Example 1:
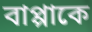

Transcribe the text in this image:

বাপ্পাকে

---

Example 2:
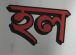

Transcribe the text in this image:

হল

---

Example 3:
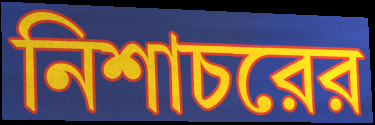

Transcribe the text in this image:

নিশাচরের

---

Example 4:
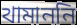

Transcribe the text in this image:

থামাননি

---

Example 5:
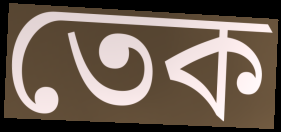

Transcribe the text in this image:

তেক